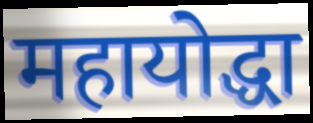
महायोद्धा